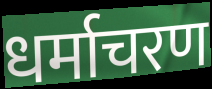
धर्माचरण